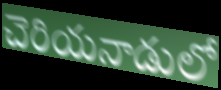
చెరియనాడులో